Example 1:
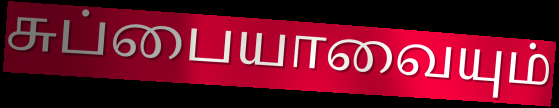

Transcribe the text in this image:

சுப்பையாவையும்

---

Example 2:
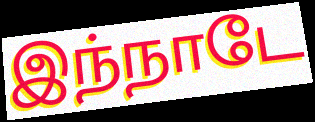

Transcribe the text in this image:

இந்நாடே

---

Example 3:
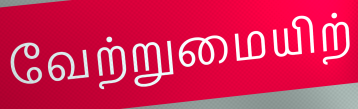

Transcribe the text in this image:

வேற்றுமையிற்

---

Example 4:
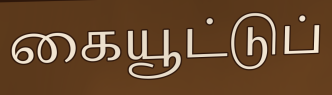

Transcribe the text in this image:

கையூட்டுப்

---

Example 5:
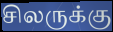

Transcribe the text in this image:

சிலருக்கு